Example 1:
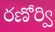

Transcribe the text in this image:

రణోర్వి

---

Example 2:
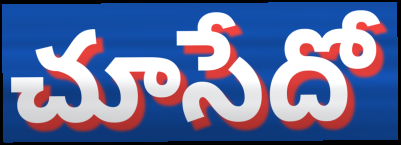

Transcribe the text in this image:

చూసేదో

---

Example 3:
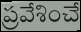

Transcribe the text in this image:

ప్రవేశించే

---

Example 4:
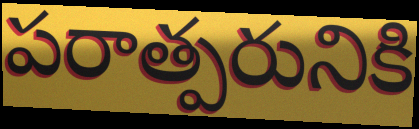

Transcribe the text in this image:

పరాత్పరునికి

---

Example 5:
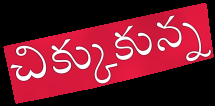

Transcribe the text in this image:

చిక్కుకున్న